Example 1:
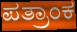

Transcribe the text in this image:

ಪತ್ರಾಂಕ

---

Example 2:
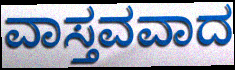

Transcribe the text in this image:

ವಾಸ್ತವವಾದ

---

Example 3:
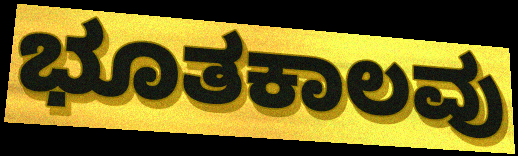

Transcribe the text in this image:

ಭೂತಕಾಲವು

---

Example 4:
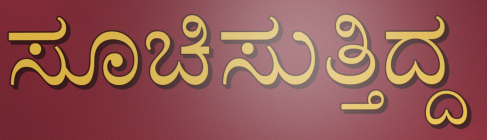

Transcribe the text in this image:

ಸೂಚಿಸುತ್ತಿದ್ದ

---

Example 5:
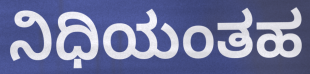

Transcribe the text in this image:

ನಿಧಿಯಂತಹ